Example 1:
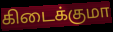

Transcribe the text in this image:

கிடைக்குமா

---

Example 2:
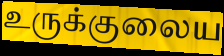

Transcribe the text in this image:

உருக்குலைய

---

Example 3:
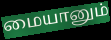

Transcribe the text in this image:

மையானும்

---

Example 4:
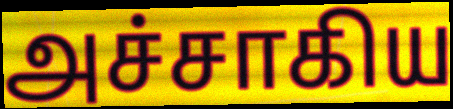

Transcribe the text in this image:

அச்சாகிய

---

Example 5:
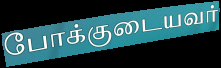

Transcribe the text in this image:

போக்குடையவர்